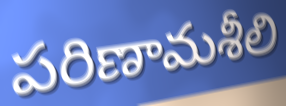
పరిణామశీలి